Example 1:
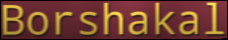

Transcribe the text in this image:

Borshakal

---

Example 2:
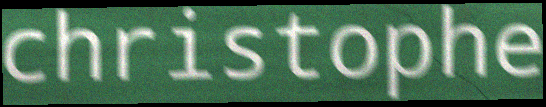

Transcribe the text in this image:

christophe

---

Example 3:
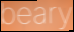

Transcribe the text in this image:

beary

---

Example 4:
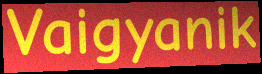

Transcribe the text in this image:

Vaigyanik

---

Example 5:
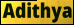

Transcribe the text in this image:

Adithya